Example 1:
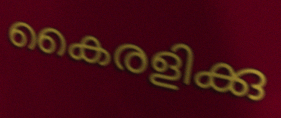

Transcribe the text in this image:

കൈരളിക്കു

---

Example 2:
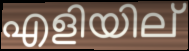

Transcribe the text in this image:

എളിയില്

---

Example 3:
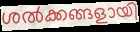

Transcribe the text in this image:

ശൽക്കങ്ങളായി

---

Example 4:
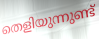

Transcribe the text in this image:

തെളിയുന്നുണ്ട്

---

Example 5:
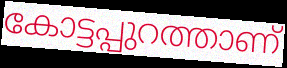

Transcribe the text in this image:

കോട്ടപ്പുറത്താണ്